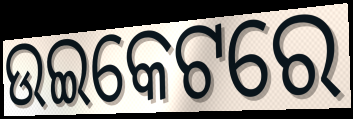
ଉଇକେଟରେ